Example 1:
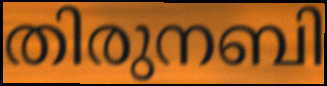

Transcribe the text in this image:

തിരുനബി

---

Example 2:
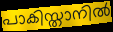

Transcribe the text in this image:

പാകിസ്താനിൽ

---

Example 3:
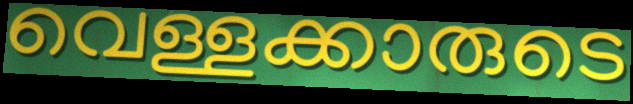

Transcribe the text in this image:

വെള്ളക്കാരുടെ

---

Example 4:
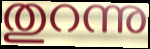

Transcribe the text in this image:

തുറന്നു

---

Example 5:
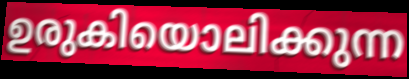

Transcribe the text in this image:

ഉരുകിയൊലിക്കുന്ന